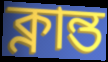
ক্নান্ত